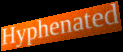
Hyphenated